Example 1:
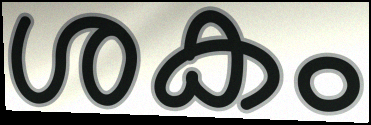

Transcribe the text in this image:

ശകം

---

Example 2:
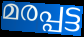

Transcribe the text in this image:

മരപ്പട്ട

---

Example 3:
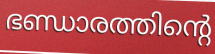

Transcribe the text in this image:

ഭണ്ഡാരത്തിന്റെ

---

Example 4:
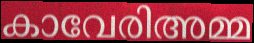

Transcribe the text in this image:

കാവേരിഅമ്മ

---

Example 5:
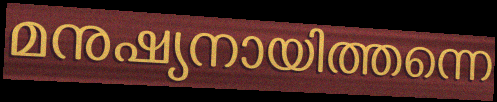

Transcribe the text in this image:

മനുഷ്യനായിത്തന്നെ